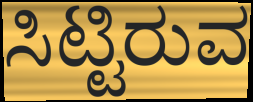
ಸಿಟ್ಟಿರುವ